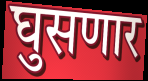
घुसणार